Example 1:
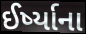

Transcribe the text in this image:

ઈર્ષ્યાના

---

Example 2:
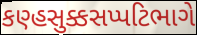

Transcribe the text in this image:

કણ્હસુક્કસપ્પટિભાગે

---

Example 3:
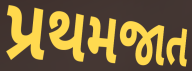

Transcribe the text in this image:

પ્રથમજાત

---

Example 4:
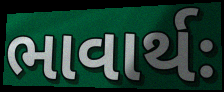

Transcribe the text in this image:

ભાવાર્થઃ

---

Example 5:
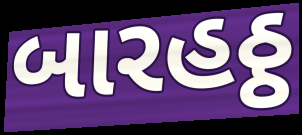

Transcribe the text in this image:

બારહઠ્ઠ